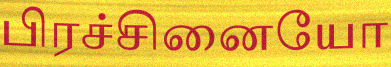
பிரச்சினையோ